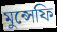
মুন্সেফি